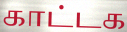
காட்டக